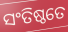
ସଂତିଷ୍ଠତେ